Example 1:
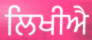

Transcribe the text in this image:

ਲਿਖੀਐ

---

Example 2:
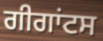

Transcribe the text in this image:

ਗੀਗਾਂਟਸ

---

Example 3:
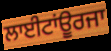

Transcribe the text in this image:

ਲਾਈਟਾਂਊਰਜਾ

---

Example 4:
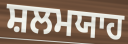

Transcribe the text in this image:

ਸ਼ਲਮਯਾਹ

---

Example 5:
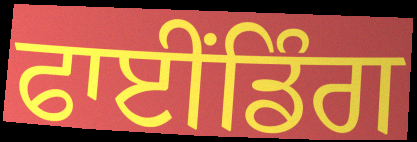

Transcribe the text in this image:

ਫਾਈਂਡਿੰਗ